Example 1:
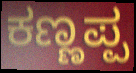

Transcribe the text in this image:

ಕಣ್ಣಪ್ಪ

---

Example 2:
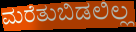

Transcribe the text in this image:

ಮರೆತುಬಿಡಲಿಲ್ಲ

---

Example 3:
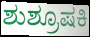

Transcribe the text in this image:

ಶುಶ್ರೂಷಕಿ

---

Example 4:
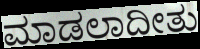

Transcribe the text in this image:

ಮಾಡಲಾದೀತು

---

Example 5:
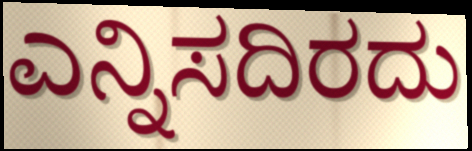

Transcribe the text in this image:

ಎನ್ನಿಸದಿರದು